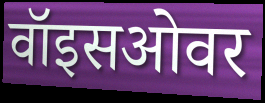
वॉइसओवर